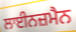
ਲਾਈਨਜ਼ਮੈਨ